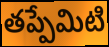
తప్పేమిటి